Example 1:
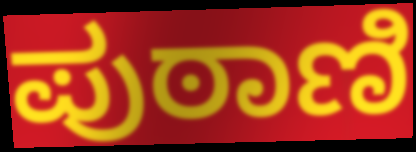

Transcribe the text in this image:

ಪುಠಾಣಿ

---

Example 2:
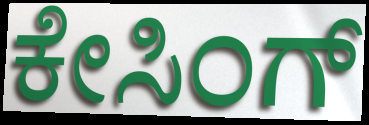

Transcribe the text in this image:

ಕೇಸಿಂಗ್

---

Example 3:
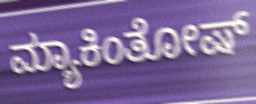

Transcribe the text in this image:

ಮ್ಯಾಕಿಂತೋಷ್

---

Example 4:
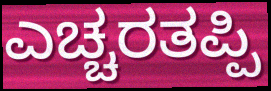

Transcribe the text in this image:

ಎಚ್ಚರತಪ್ಪಿ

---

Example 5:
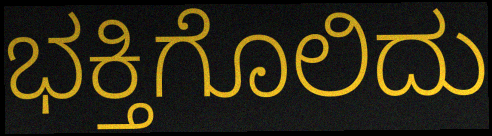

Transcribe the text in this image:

ಭಕ್ತಿಗೊಲಿದು